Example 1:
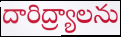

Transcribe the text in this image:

దారిద్ర్యాలను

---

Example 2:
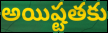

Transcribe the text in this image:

అయిష్టతకు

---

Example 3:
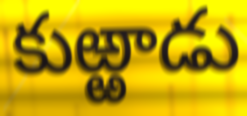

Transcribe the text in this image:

కుఱ్ఱాడు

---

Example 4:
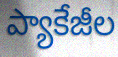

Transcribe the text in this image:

ప్యాకేజీల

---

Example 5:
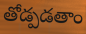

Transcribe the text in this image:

తోడ్పడతాం